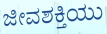
ಜೀವಶಕ್ತಿಯು